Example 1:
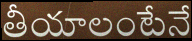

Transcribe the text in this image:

తీయాలంటేనే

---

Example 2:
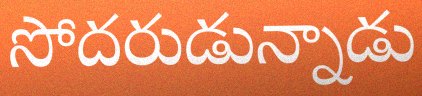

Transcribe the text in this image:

సోదరుడున్నాడు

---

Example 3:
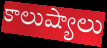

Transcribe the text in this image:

కాలుష్యాలు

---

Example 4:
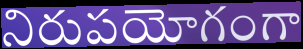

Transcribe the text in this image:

నిరుపయోగంగా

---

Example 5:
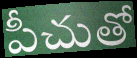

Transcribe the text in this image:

పీచుతో